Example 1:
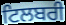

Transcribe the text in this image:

ਟਿਲਬਰੀ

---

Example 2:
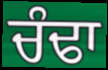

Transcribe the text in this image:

ਚੰਢਾ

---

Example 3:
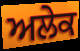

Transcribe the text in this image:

ਅਲੇਕ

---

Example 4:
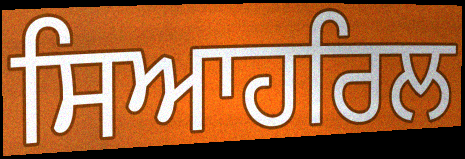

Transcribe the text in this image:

ਸਿਆਹਰਿਲ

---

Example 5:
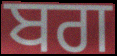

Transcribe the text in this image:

ਬਗ